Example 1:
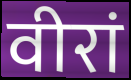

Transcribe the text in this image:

वीरां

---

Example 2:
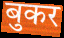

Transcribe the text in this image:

बुकर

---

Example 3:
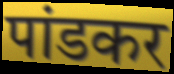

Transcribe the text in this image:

पांडकर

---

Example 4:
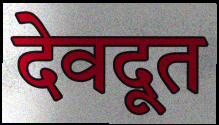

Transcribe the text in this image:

देवदूत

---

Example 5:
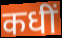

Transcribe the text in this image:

कधीं